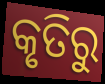
କୃତିରୁ